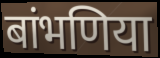
बांभणिया